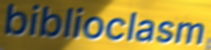
biblioclasm